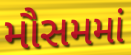
મૌસમમાં